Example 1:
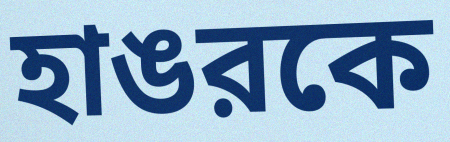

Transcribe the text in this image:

হাঙরকে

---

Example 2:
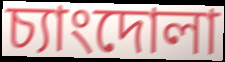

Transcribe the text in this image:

চ্যাংদোলা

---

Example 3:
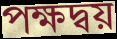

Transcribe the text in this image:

পক্ষদ্বয়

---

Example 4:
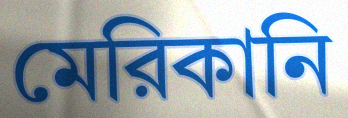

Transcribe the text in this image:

মেরিকানি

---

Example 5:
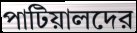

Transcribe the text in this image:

পাটিয়ালদের